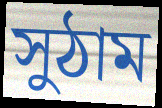
সুঠাম